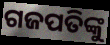
ଗଜପତିଙ୍କୁ